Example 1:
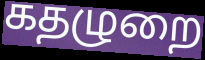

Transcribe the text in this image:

கதழுறை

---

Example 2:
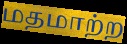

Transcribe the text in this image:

மதமாற்ற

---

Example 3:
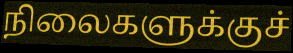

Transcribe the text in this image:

நிலைகளுக்குச்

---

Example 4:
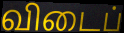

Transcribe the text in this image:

விடைப்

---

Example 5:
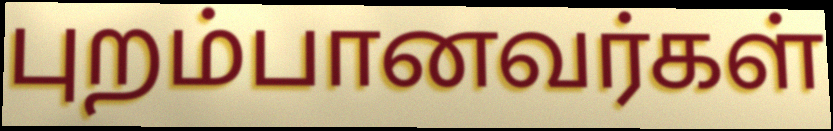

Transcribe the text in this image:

புறம்பானவர்கள்